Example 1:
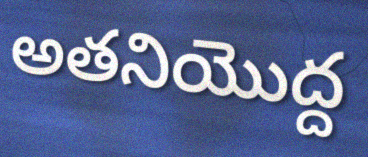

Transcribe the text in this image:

అతనియొద్ద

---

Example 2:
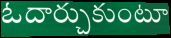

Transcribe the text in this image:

ఓదార్చుకుంటూ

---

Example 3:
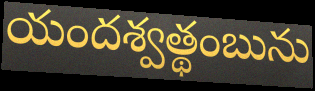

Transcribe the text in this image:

యందశ్వత్థంబును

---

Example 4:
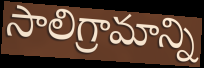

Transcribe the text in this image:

సాలిగ్రామాన్ని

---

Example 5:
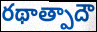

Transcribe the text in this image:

రథాత్పాదౌ